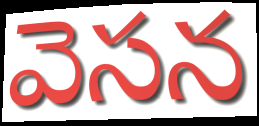
వెసన